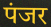
पंजर